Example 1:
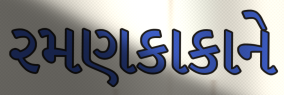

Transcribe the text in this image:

રમણકાકાને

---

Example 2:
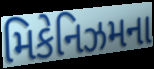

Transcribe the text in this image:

મિકેનિઝમના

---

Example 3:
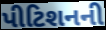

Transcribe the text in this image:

પીટિશનની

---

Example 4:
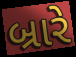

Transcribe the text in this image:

બ્રારે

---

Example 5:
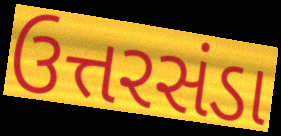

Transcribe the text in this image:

ઉત્તરસંડા